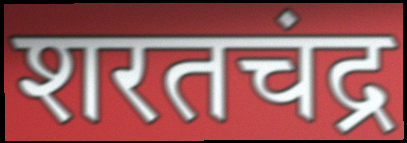
शरतचंद्र